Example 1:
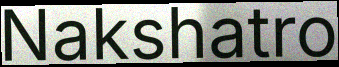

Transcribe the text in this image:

Nakshatro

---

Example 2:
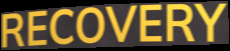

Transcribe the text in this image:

RECOVERY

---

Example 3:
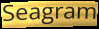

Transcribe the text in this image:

Seagram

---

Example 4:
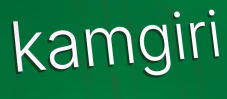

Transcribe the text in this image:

kamgiri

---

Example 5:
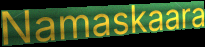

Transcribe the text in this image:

Namaskaara